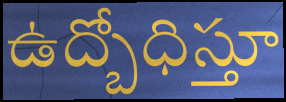
ఉద్బోధిస్తూ